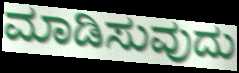
ಮಾಡಿಸುವುದು